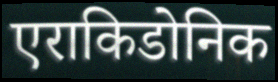
एराकिडोनिक